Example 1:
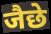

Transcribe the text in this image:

जैछे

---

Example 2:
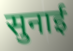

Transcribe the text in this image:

सुनाई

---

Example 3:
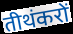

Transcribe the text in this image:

तीथंकरों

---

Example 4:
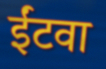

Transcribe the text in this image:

ईंटवा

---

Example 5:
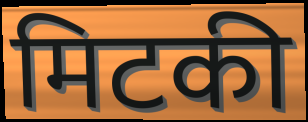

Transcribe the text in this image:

मिटकी